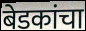
बेडकांचा